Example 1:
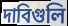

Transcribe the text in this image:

দাবিগুলি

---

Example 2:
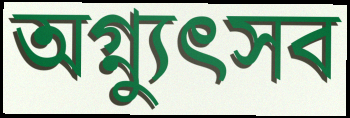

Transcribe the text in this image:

অগ্ন্যুৎসব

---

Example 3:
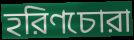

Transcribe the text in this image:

হরিণচোরা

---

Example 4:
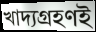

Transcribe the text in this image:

খাদ্যগ্রহণই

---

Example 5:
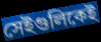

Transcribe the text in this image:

সেইগুলিকেই